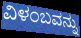
ವಿಳಂಬವನ್ನು